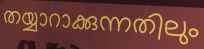
തയ്യാറാക്കുന്നതിലും